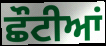
ਛੌਟੀਆਂ